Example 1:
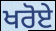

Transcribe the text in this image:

ਖਰੋਏ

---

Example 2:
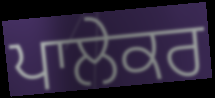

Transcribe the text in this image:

ਪਾਲੇਕਰ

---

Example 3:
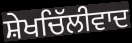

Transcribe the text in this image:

ਸ਼ੇਖਚਿੱਲੀਵਾਦ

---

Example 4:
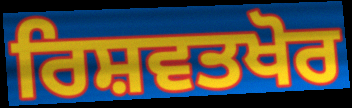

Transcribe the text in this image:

ਰਿਸ਼ਵਤਖੋਰ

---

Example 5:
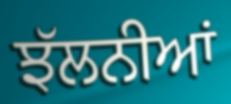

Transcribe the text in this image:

ਝੱਲਨੀਆਂ